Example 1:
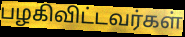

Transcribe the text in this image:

பழகிவிட்டவர்கள்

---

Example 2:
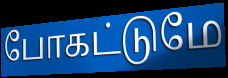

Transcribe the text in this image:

போகட்டுமே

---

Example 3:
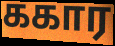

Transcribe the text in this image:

ககார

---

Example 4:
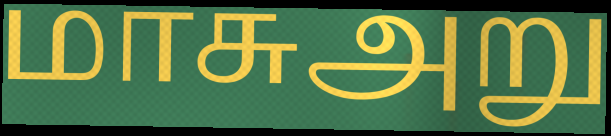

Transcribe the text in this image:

மாசுஅறு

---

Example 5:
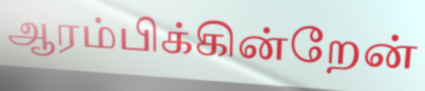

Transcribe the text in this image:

ஆரம்பிக்கின்றேன்